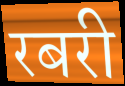
रबरी